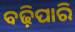
ବଢ଼ିପାରି